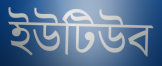
ইউটিউব